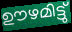
ഊഴമിട്ടു്